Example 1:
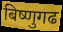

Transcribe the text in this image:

बिष्णुगढ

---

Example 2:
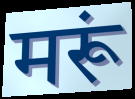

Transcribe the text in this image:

मरूं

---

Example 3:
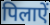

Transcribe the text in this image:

पिलाऐं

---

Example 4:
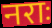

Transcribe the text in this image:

नराः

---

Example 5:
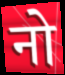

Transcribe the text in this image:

नो